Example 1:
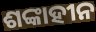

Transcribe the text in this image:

ଶଙ୍କାହୀନ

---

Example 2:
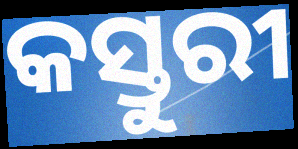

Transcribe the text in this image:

କସ୍ତୁରୀ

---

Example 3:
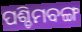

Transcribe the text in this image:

ପଶ୍ଚିମବଙ୍ଗ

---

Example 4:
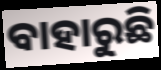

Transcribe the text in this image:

ବାହାରୁଛି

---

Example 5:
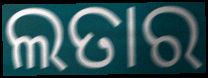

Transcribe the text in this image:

ଲତାର